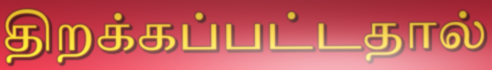
திறக்கப்பட்டதால்